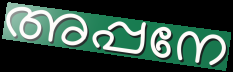
അപ്പനേ